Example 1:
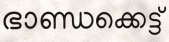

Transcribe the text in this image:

ഭാണ്ഡക്കെട്ട്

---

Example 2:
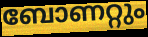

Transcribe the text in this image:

ബോണറ്റും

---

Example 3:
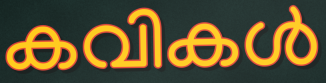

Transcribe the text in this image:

കവികൾ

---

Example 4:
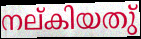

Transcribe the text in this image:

നല്കിയതു്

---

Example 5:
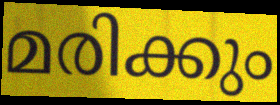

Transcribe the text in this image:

മരിക്കും